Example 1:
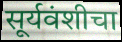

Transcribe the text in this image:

सूर्यवंशीचा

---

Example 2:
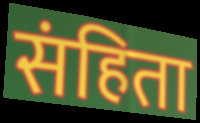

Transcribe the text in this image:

संहिता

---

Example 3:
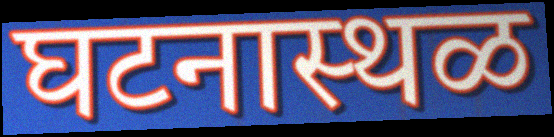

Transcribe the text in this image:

घटनास्थळ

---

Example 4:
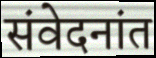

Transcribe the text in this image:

संवेदनांत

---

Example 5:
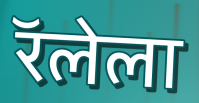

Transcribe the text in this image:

रॅलेला